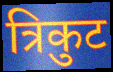
त्रिकुट